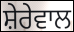
ਸ਼ੇਰੇਵਾਲ